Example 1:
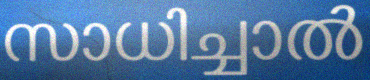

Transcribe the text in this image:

സാധിച്ചാൽ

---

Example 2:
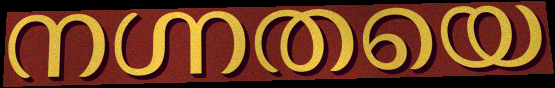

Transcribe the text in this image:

നഗ്നതയെ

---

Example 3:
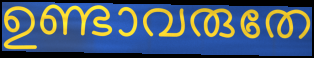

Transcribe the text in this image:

ഉണ്ടാവരുതേ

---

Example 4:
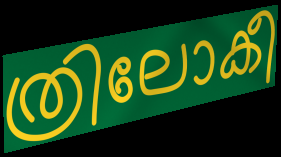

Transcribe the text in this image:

ത്രിലോകീ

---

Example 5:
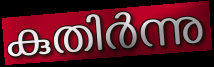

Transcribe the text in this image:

കുതിർന്നു